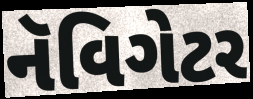
નૅવિગેટર